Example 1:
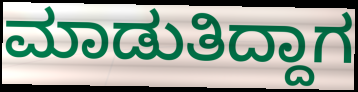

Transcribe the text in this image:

ಮಾಡುತಿದ್ದಾಗ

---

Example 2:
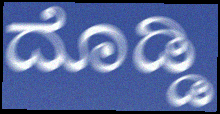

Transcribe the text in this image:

ದೊಡ್ಡಿ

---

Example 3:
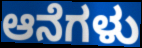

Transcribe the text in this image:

ಆನೆಗಳು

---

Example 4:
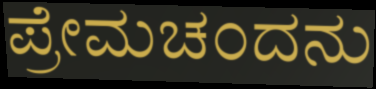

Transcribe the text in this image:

ಪ್ರೇಮಚಂದನು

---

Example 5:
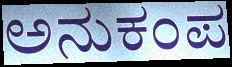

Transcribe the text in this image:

ಅನುಕಂಪ